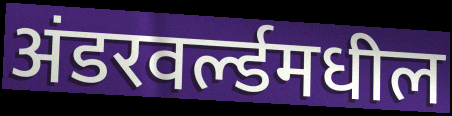
अंडरवर्ल्डमधील